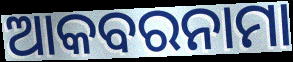
ଆକବରନାମା